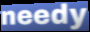
needy